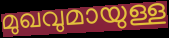
മുഖവുമായുള്ള